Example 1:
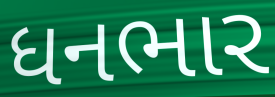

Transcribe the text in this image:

ધનભાર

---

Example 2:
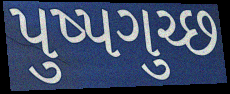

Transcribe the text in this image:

પુષ્પગુચ્છ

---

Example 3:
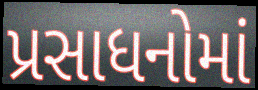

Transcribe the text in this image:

પ્રસાધનોમાં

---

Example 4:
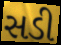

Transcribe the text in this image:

સડી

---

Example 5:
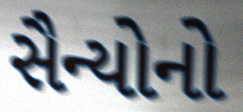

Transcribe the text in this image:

સૈન્યોનો